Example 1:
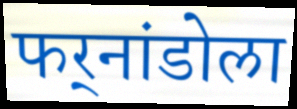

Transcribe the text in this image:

फर्नांडोला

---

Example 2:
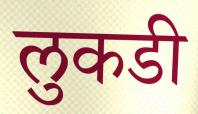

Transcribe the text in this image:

लुकडी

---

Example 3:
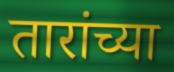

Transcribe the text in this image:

तारांच्या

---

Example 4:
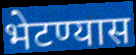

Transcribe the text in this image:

भेटण्यास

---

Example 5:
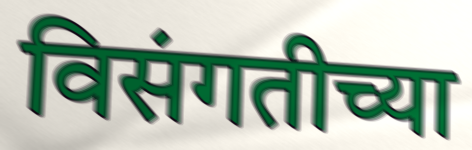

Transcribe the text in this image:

विसंगतीच्या